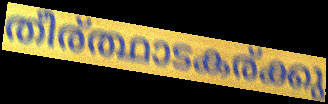
തീര്ത്ഥാടകര്ക്കു